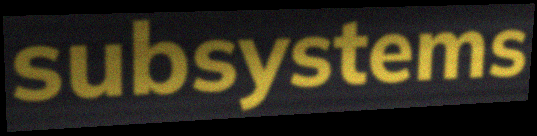
subsystems